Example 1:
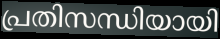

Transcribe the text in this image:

പ്രതിസന്ധിയായി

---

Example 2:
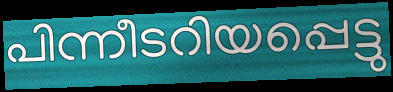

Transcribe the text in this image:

പിന്നീടറിയപ്പെട്ടു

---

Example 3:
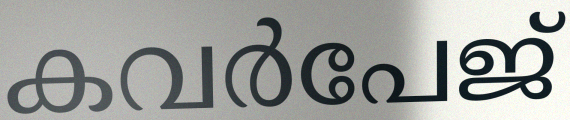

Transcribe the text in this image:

കവർപേജ്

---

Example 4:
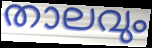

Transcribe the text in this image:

താലവും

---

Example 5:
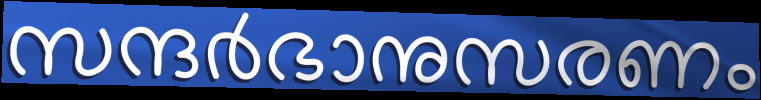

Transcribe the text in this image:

സന്ദർഭാനുസരണം